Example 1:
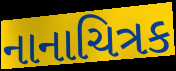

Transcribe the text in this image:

નાનાચિત્રક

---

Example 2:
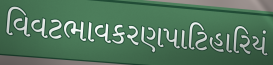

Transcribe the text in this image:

વિવટભાવકરણપાટિહારિયં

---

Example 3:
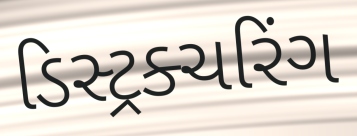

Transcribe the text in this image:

ડિસ્ટ્રક્ચરિંગ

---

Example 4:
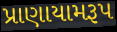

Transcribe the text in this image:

પ્રાણાયામરૂપ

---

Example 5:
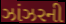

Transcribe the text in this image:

ઝાંઝરની